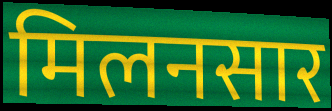
मिलनसार